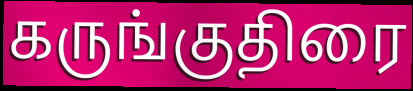
கருங்குதிரை